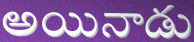
అయినాడు